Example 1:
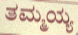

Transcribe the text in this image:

ತಮ್ಮಯ್ಯ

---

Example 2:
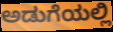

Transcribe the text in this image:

ಅಡುಗೆಯಲ್ಲಿ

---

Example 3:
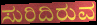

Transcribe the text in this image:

ಸುರಿದಿರುವ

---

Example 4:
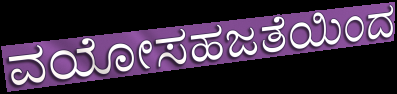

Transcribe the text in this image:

ವಯೋಸಹಜತೆಯಿಂದ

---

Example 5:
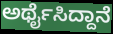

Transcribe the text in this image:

ಅರ್ಥೈಸಿದ್ದಾನೆ